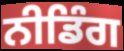
ਨੀਡਿੰਗ